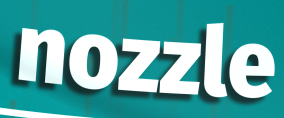
nozzle